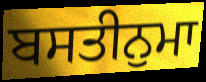
ਬਸਤੀਨੁਮਾ